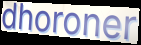
dhoroner